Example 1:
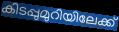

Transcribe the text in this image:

കിടപ്പുമുറിയിലേക്ക്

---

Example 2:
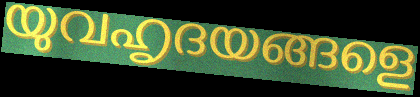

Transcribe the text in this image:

യുവഹൃദയങ്ങളെ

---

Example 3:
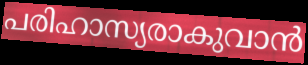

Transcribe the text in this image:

പരിഹാസ്യരാകുവാൻ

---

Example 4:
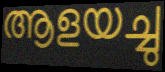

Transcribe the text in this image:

ആളയച്ചു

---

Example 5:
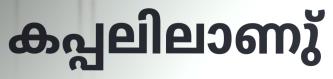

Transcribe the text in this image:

കപ്പലിലാണു്